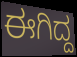
ಈಗಿದ್ದ